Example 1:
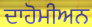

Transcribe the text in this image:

ਦਾਹੋਮੀਅਨ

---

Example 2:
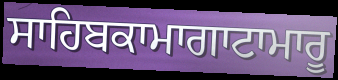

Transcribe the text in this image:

ਸਾਹਿਬਕਾਮਾਗਾਟਾਮਾਰੂ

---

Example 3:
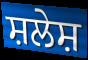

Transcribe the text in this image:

ਸ਼ਲੇਸ਼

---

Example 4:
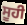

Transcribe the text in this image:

ਸੂਹੀ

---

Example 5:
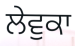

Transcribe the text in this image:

ਲੇਵੁਕਾ